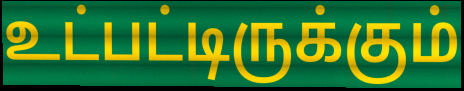
உட்பட்டிருக்கும்